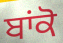
ਬਾਂਕੋ